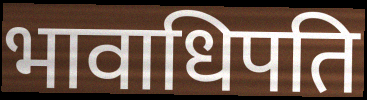
भावाधिपति